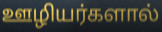
ஊழியர்களால்